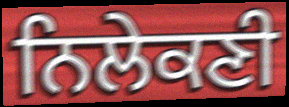
ਨਿਲੇਕਣੀ